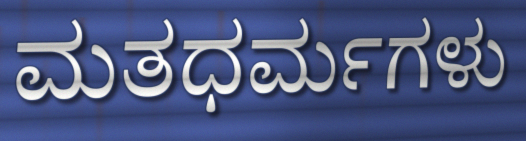
ಮತಧರ್ಮಗಳು